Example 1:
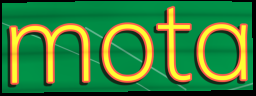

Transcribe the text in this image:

mota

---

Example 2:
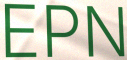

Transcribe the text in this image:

EPN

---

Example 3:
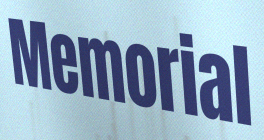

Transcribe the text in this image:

Memorial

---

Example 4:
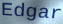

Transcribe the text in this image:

Edgar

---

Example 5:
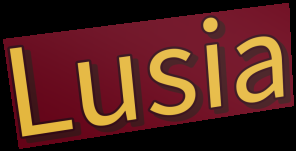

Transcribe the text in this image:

Lusia